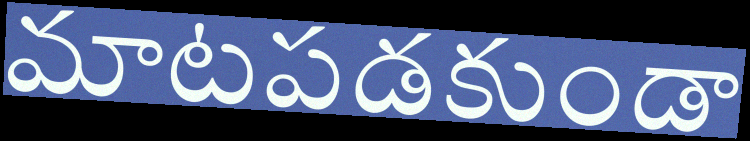
మాటపడకుండా